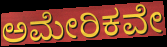
ಅಮೇರಿಕವೇ